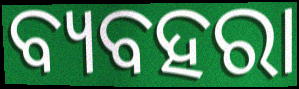
ବ୍ୟବହରା